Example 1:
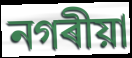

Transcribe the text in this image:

নগৰীয়া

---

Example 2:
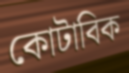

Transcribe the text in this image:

কোটাবিক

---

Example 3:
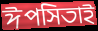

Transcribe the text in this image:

ঈপসিতাই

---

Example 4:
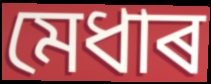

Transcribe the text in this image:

মেধাৰ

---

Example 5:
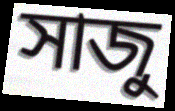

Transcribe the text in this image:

সাজু